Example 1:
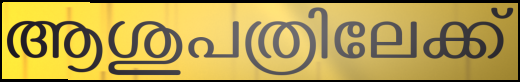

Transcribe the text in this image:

ആശുപത്രിലേക്ക്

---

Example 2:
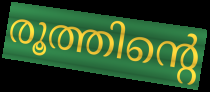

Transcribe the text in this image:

രൂത്തിന്റെ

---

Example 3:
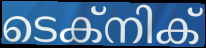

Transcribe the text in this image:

ടെക്നിക്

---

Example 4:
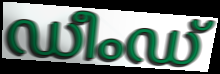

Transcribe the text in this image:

ഡീംഡ്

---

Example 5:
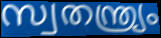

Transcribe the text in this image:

സ്വതന്ത്ര്യം